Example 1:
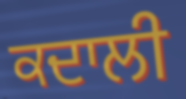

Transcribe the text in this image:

ਕਦਾਲੀ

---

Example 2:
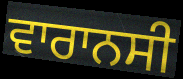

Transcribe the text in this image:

ਵਾਰਾਨਸੀ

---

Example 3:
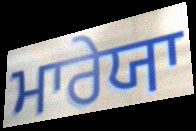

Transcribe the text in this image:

ਮਾਰੇਯਾ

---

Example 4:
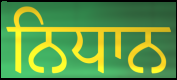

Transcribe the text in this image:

ਨਿਧਾਨ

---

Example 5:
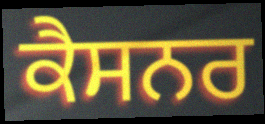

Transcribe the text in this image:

ਕੈਸਨਰ